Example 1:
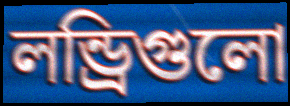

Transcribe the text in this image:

লন্ড্রিগুলো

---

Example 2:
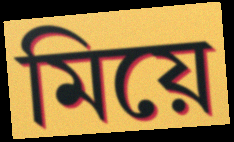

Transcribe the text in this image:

মিয়ে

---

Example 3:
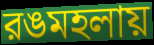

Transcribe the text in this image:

রঙমহলায়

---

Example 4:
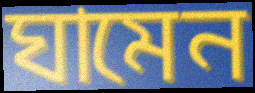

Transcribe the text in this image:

ঘামেন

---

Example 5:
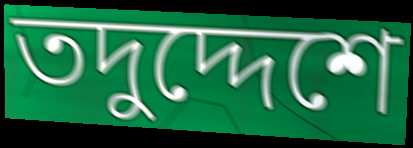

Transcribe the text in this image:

তদুদ্দেশে